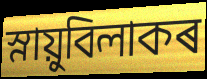
স্নায়ুবিলাকৰ